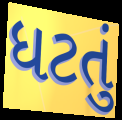
ધટતું